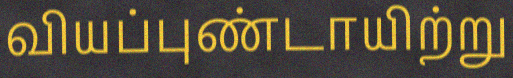
வியப்புண்டாயிற்று